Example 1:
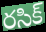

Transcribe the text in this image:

రసిక్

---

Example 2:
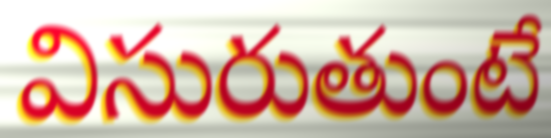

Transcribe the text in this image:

విసురుతుంటే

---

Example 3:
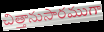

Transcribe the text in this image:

చిత్తానుసారముగా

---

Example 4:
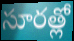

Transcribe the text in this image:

సూరత్లో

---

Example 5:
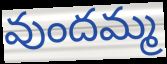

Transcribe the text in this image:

వుందమ్మ